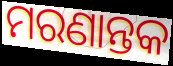
ମରଣାନ୍ତକ